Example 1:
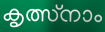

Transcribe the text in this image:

കൃത്സ്നാം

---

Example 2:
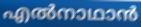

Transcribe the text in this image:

എൽനാഥാൻ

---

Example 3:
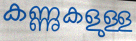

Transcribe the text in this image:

കണ്ണുകളുള്ള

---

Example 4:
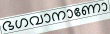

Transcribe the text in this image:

ഭഗവാനാണോ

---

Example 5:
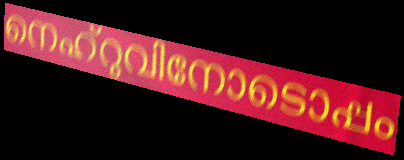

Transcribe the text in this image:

നെഹ്റുവിനോടൊപ്പം